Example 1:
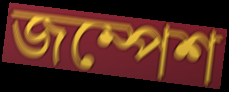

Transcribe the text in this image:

জম্পেশ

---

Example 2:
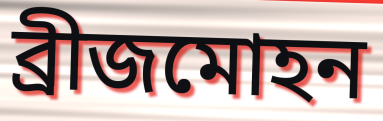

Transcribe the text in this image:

ব্রীজমোহন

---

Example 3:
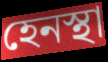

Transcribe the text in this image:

হেনস্থা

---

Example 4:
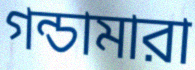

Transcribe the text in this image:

গন্ডামারা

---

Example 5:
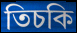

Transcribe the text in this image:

তিচকি